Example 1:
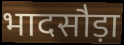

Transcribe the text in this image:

भादसौड़ा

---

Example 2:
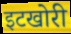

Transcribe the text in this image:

इटखोरी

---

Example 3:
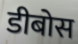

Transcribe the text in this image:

डीबोस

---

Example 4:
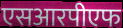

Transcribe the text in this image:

एसआरपीएफ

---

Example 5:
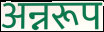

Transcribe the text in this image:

अन्नरूप